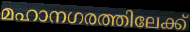
മഹാനഗരത്തിലേക്ക്